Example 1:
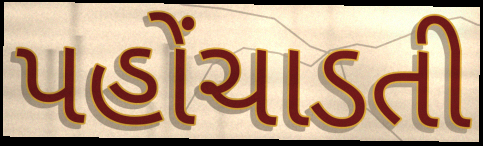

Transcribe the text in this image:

પહોંચાડતી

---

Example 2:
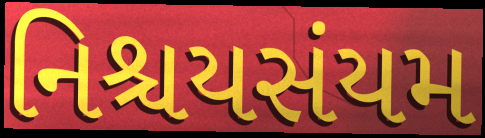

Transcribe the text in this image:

નિશ્ચયસંયમ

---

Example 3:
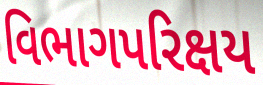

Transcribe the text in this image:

વિભાગપરિક્ષય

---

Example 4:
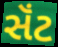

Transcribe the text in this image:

સૅંટ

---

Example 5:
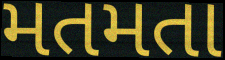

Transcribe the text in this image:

મતમતા